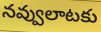
నవ్వులాటకు